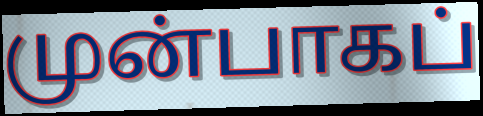
முன்பாகப்